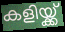
കളിയ്ക്ക്